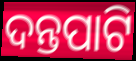
ଦନ୍ତପାଟି